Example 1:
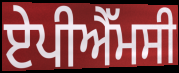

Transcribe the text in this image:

ਏਪੀਐੱਮਸੀ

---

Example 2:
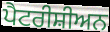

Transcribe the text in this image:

ਪੈਟਰੀਸ਼ੀਅਨ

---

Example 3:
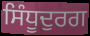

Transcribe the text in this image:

ਸਿੰਧੂਦੁਰਗ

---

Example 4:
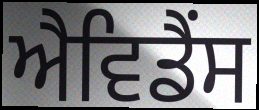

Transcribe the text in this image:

ਐਵਿਡੈਂਸ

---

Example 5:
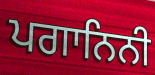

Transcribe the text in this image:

ਪਗਾਨਿਨੀ